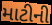
માટીની